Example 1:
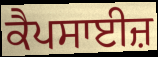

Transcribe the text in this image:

ਕੈਪਸਾਈਜ਼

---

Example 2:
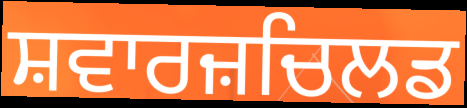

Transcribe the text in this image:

ਸ਼ਵਾਰਜ਼ਚਿਲਡ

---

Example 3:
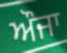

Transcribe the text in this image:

ਔਜਾ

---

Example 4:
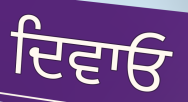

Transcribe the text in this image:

ਦਿਵਾਓ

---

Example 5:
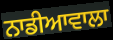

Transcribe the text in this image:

ਨਾਡੀਆਵਾਲਾ